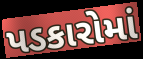
પડકારોમાં